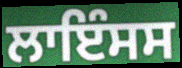
ਲਾਇੰਸਸ